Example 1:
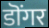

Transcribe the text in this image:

डॊंगर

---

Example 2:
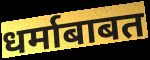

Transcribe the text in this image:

धर्माबाबत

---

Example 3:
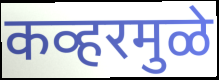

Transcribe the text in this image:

कव्हरमुळे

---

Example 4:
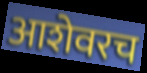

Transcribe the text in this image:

आशेवरच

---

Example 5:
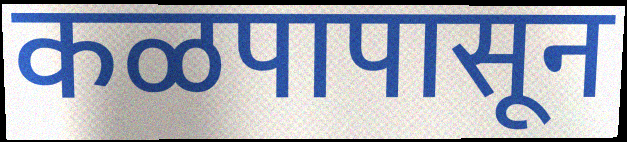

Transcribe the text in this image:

कळपापासून